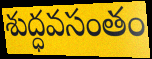
శుద్ధవసంతం